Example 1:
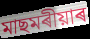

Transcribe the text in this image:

মাছমৰীয়াৰ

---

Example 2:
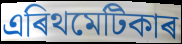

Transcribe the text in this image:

এৰিথমেটিকাৰ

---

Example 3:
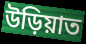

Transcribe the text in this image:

উড়িয়াত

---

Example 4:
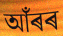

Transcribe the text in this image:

আঁৰৰ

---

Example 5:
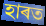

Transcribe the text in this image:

হাৰত